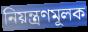
নিয়ন্ত্রণমূলক